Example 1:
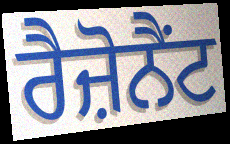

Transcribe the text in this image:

ਰੈਜ਼ੋਨੈਂਟ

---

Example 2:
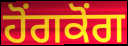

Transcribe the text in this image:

ਹੋਂਗਕੋਂਗ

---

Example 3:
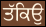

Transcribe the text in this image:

ਤੱਕਿਉ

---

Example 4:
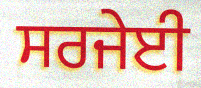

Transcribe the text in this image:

ਸਰਜੇਈ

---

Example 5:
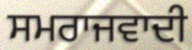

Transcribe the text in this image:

ਸਮਰਾਜਵਾਦੀ